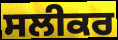
ਸਲੀਕਰ